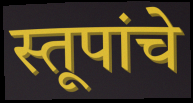
स्तूपांचे